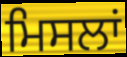
ਮਿਸਲਾਂ